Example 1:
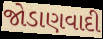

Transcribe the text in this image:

જોડાણવાદી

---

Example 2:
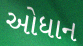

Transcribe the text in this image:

ઓધાન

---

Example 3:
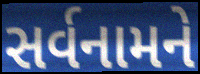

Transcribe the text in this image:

સર્વનામને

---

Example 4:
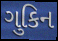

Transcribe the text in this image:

ગુકિન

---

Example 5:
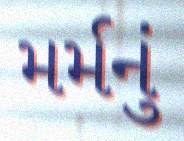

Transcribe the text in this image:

મર્મનું